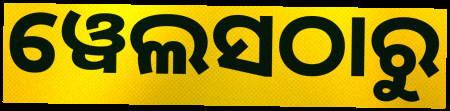
ୱେଲସଠାରୁ